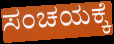
ಸಂಚಯಕ್ಕೆ